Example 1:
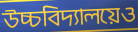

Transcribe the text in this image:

উচ্চবিদ্যালয়েও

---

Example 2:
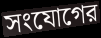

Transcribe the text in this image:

সংযোগের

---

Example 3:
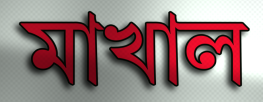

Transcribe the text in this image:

মাখাল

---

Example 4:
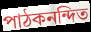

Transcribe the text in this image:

পাঠকনন্দিত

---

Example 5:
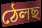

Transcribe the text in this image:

ঠেলছ